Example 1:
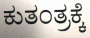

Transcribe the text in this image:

ಕುತಂತ್ರಕ್ಕೆ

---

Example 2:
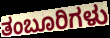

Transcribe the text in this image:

ತಂಬೂರಿಗಳು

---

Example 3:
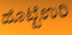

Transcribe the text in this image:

ಹೊಟ್ಟೆಉರಿ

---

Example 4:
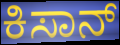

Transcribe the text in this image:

ಕಿಸಾನ್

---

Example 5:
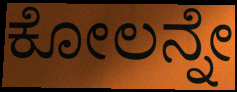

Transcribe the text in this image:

ಕೋಲನ್ನೇ